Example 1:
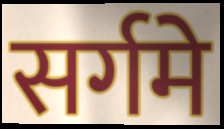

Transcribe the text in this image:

सर्गमे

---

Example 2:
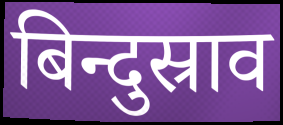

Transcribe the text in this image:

बिन्दुस्राव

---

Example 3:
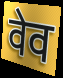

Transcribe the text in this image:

वेव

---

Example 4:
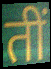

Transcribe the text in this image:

तीं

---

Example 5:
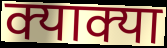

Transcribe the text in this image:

क्याक्या